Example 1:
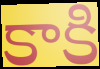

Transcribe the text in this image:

కాకి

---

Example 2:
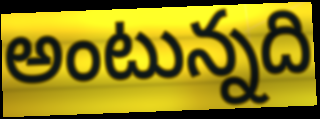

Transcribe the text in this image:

అంటున్నది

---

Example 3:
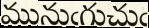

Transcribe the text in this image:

మునుఁగుచుఁ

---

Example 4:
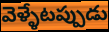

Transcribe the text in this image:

వెళ్ళేటప్పుడు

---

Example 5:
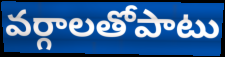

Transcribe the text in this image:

వర్గాలతోపాటు